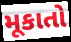
મૂકાતો